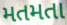
મતમતા